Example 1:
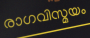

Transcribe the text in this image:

രാഗവിസ്മയം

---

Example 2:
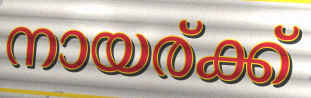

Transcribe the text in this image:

നായര്ക്ക്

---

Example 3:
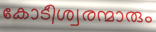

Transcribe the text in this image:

കോടീശ്വരന്മാരും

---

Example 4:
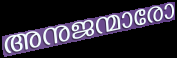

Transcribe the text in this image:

അനുജന്മാരോ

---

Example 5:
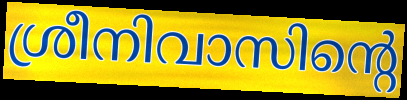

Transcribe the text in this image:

ശ്രീനിവാസിന്റെ